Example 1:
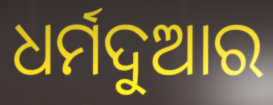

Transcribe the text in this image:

ଧର୍ମଦୁଆର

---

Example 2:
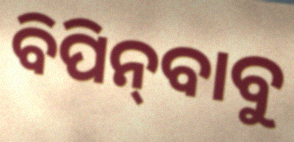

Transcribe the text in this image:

ବିପିନ୍‌ବାବୁ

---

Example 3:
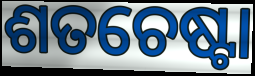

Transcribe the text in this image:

ଶତଚେଷ୍ଟା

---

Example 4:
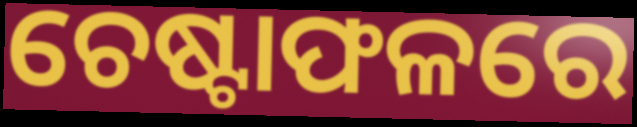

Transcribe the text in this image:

ଚେଷ୍ଟାଫଳରେ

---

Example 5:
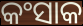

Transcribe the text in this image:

କଂସାକ